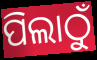
ପିଲାଠୁଁ